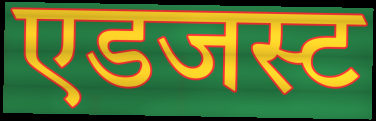
एडजस्ट